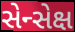
સેન્સેક્ષ